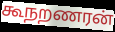
கூநறணரன்